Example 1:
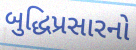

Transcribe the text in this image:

બુદ્ધિપ્રસારનો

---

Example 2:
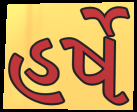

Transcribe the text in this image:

હર્ષે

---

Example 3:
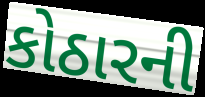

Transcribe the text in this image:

કોઠારની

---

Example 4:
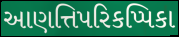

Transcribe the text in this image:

આણત્તિપરિકપ્પિકા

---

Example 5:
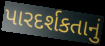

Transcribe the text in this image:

પારદર્શકતાનું